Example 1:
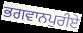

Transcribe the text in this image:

ਭਗਵਾਨਪੁਰੀਏ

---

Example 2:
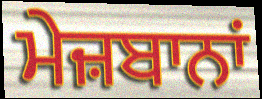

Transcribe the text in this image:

ਮੇਜ਼ਬਾਨਾਂ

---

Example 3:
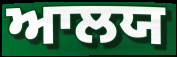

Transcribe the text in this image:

ਆਲਯ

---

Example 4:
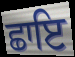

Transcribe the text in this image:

ਛਾਇ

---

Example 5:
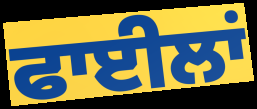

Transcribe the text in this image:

ਫਾਈਲਾਂ